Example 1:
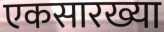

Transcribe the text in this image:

एकसारख्या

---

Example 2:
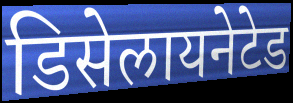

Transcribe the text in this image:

डिसेलायनेटेड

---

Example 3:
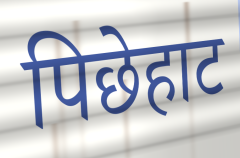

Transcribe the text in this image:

पिछेहाट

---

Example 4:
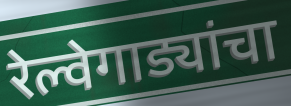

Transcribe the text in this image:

रेल्वेगाड्यांचा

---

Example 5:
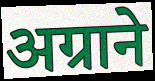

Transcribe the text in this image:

अग्राने